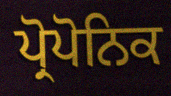
ਪ੍ਰੋਪੋਨਿਕ